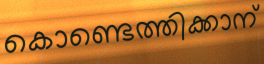
കൊണ്ടെത്തിക്കാന്